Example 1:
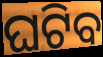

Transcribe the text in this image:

ଘଟିବ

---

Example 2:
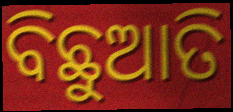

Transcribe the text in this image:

ବିଛୁଆତି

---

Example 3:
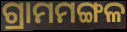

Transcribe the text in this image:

ଗ୍ରାମମଙ୍ଗଳ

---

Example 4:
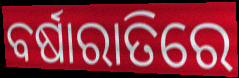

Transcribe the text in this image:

ବର୍ଷାରାତିରେ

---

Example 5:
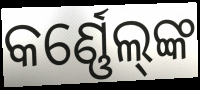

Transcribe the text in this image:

କର୍ଣ୍ଣେଲ୍‌ଙ୍କ